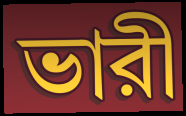
ভারী